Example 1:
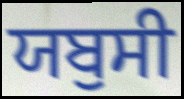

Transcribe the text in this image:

ਯਬੁਸੀ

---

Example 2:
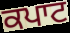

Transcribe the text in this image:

ਕਪਾਟ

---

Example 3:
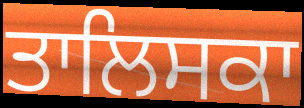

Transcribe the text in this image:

ਤਾਲਿਸਕਾ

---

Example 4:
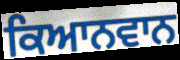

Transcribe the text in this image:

ਕਿਆਨਵਾਨ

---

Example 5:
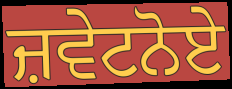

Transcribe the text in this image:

ਜ਼ਵੇਟਨੋਏ